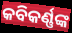
କବିକର୍ଣ୍ଣଙ୍କ